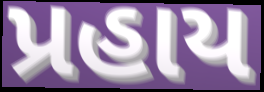
પ્રહાય